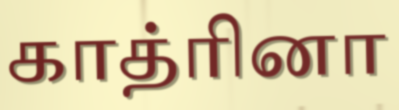
காத்ரினா